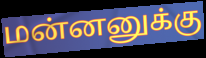
மன்னனுக்கு